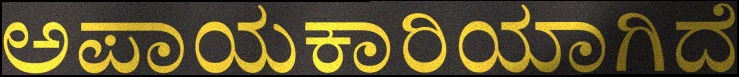
ಅಪಾಯಕಾರಿಯಾಗಿದೆ